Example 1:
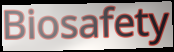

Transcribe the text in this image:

Biosafety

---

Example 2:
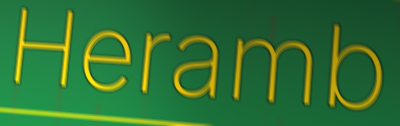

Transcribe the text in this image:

Heramb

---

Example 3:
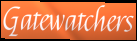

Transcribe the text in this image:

Gatewatchers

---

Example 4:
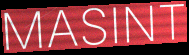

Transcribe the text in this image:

MASINT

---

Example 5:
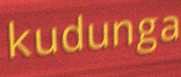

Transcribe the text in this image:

kudunga